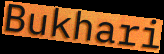
Bukhari